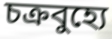
চক্রবুহ্যে